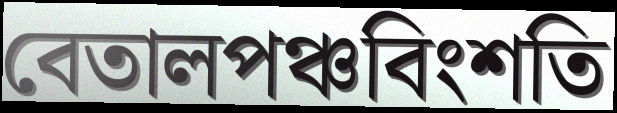
বেতালপঞ্চবিংশতি